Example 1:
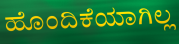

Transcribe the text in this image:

ಹೊಂದಿಕೆಯಾಗಿಲ್ಲ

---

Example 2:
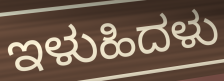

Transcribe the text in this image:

ಇಳುಹಿದಳು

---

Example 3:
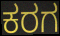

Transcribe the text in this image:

ಕರಗ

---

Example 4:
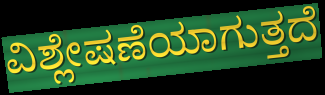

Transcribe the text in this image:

ವಿಶ್ಲೇಷಣೆಯಾಗುತ್ತದೆ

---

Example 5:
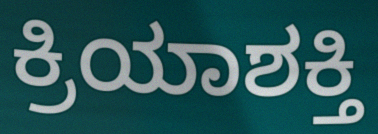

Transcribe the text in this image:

ಕ್ರಿಯಾಶಕ್ತಿ